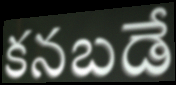
కనబడే